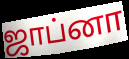
ஜாப்னா